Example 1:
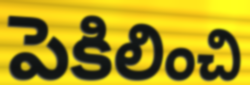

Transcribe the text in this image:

పెకిలించి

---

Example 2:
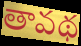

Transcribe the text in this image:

తావథ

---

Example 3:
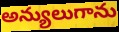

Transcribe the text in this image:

అన్యులుగాను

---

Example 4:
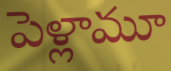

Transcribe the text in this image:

పెళ్లామూ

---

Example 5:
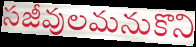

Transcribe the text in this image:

సజీవులమనుకొని